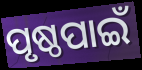
ପୃଷ୍ଠପାଇଁ